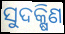
ସୁଦକ୍ଷିଣ